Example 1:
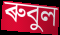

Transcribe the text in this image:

ৰুবুল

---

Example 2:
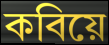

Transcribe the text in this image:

কবিয়ে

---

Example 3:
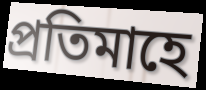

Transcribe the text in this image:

প্ৰতিমাহে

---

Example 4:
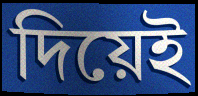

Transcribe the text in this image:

দিয়েই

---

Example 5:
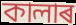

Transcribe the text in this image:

কালাৰ